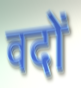
वदों